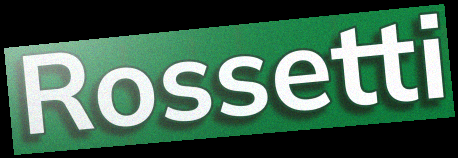
Rossetti